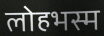
लोहभस्म